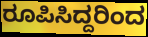
ರೂಪಿಸಿದ್ದರಿಂದ